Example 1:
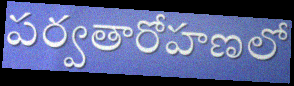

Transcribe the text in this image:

పర్వతారోహణలో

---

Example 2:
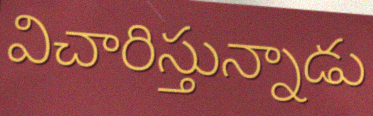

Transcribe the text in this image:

విచారిస్తున్నాడు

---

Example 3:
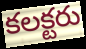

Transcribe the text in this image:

కలక్టరు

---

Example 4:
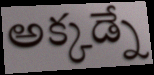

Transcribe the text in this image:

అక్కడ్నే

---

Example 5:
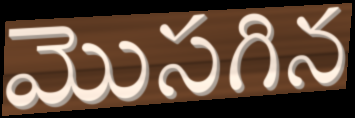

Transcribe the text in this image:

మొసగిన